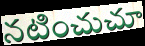
నటించుచూ